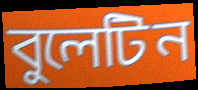
বুলেটিন